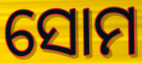
ସୋମ